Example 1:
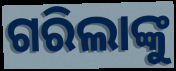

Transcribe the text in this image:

ଗରିଲାଙ୍କୁ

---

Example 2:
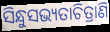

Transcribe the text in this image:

ସିନ୍ଧୁସଭ୍ୟତାଚିତ୍ରାଣି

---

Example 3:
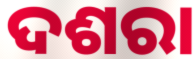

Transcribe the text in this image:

ଦଶରା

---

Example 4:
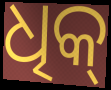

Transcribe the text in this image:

ଧିକ୍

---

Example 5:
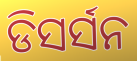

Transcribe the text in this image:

ଡିସର୍ସନ